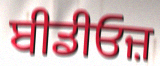
ਬੀਡੀਓਜ਼